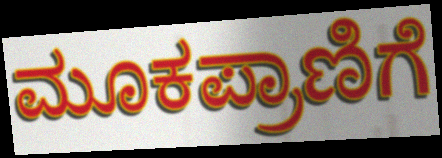
ಮೂಕಪ್ರಾಣಿಗೆ